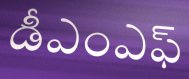
డీఎంఎఫ్